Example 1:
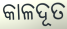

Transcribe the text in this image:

କାଳଦୂତ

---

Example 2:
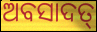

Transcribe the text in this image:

ଅବସାଦତ୍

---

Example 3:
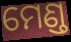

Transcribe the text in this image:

ମେଣ୍ଡ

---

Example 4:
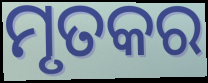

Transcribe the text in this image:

ମୃତକର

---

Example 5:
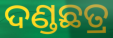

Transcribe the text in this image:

ଦଣ୍ଡଛତ୍ର